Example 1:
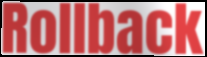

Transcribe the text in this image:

Rollback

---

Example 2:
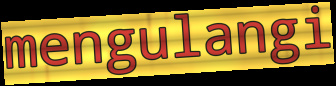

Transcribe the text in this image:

mengulangi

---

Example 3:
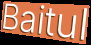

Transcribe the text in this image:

Baitul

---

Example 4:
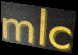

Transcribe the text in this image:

mlc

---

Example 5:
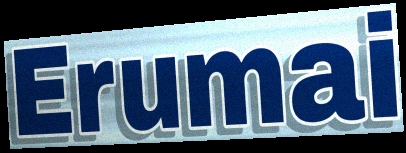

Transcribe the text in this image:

Erumai